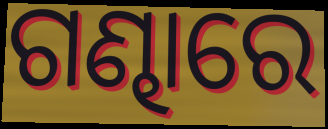
ଗଣ୍ଢାରେ